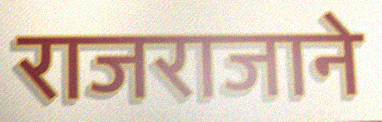
राजराजाने